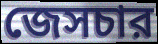
জেসচার